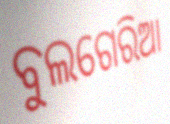
ବୁଲଗେରିଆ